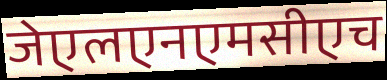
जेएलएनएमसीएच